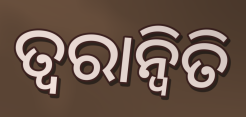
ତ୍ଵରାନ୍ଵିତି